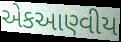
એકઆણ્વીય